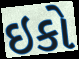
ઇકો